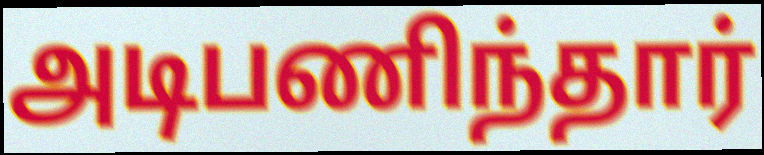
அடிபணிந்தார்